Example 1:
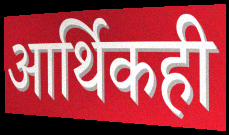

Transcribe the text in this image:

आर्थिकही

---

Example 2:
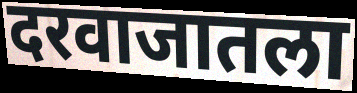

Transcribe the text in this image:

दरवाजातला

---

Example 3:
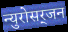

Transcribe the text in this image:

न्युरोसर्जन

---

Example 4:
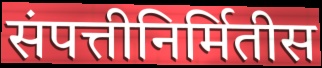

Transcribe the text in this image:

संपत्तीनिर्मितीस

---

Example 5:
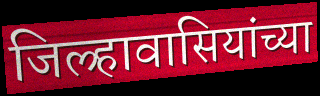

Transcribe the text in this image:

जिल्हावासियांच्या